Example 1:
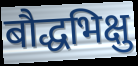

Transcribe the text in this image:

बौद्धभिक्षु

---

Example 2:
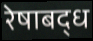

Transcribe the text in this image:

रेषाबद्ध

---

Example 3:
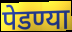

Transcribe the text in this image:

पेडण्या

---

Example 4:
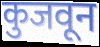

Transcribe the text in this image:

कुजवून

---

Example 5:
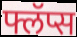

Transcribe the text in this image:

फ्लॅप्स